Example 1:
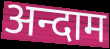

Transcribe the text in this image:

अन्दाम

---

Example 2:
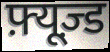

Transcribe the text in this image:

फ़्यूज़्ड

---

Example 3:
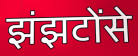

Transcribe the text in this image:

झंझटोंसे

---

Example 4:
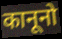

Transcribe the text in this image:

कानूनो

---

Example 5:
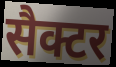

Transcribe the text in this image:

सैक्टर